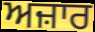
ਅਜ਼ਾਰ